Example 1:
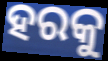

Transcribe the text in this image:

ହରକୁ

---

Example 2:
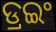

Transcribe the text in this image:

ଡ୍ରଇଂ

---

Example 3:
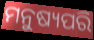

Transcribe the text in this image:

ମନୁଷ୍ୟପରି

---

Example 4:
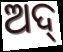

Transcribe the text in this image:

ଅଦ୍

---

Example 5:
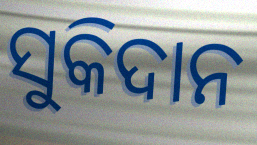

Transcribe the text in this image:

ସୁକିଦାନ